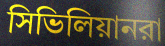
সিভিলিয়ানরা